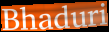
Bhaduri